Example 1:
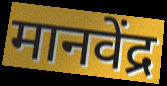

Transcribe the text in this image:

मानवेंद्र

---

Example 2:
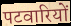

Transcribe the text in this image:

पटवारियों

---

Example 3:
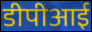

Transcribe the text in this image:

डीपीआई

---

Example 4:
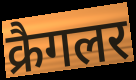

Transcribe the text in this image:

क्रैगलर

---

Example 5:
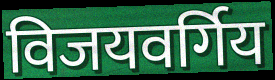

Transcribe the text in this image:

विजयवर्गिय